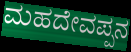
ಮಹದೇವಪ್ಪನ